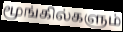
மூங்கில்களும்